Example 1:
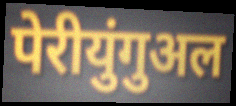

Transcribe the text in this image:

पेरीयुंगुअल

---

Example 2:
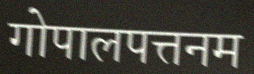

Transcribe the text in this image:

गोपालपत्तनम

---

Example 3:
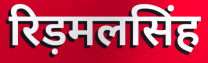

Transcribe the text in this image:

रिड़मलसिंह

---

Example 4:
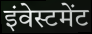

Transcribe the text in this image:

इंवेस्टमेंट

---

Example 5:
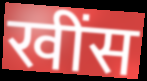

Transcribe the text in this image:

खींस